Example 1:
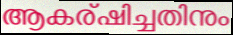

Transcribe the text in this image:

ആകര്ഷിച്ചതിനും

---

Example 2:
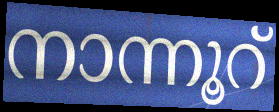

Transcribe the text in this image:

നാന്നൂറ്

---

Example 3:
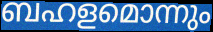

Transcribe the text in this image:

ബഹളമൊന്നും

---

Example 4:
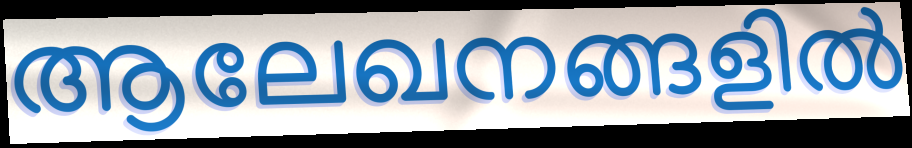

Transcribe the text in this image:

ആലേഖനങ്ങളിൽ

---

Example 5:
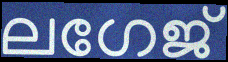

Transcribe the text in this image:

ലഗേജ്